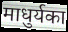
माधुर्यका